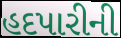
હદપારીની